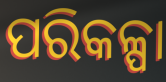
ପରିକଳ୍ପା